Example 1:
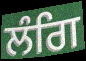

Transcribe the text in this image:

ਲੰਗਿ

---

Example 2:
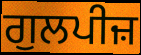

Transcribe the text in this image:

ਗੁਲਪੀਜ਼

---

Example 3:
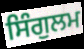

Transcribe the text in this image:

ਸਿੰਗੁਲਮ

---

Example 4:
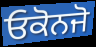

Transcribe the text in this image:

ਓਕੋਨਜੋ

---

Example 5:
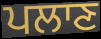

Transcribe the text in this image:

ਪਲਾਣ